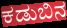
ಕಡುಬಿನ